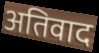
अतिवाद